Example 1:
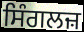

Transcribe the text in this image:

ਸਿੰਗਲਜ਼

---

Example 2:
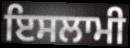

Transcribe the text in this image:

ਇਸਲਾਮੀ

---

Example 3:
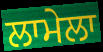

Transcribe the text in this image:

ਲਾਮੇਲਾ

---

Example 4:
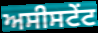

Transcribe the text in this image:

ਅਸੀਸਟੇਂਟ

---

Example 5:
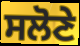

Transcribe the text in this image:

ਸਲੋਣੇ